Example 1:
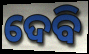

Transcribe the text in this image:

ଦେବି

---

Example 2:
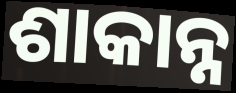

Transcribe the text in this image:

ଶାକାନ୍ନ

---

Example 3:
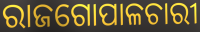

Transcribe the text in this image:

ରାଜଗୋପାଳଚାରୀ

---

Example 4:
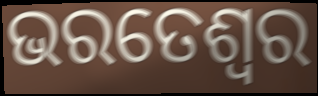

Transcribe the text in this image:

ଭରତେଶ୍ଵର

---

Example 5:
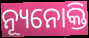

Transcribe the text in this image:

ନ୍ୟୂନୋକ୍ତି